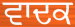
ਵਾਦਕ